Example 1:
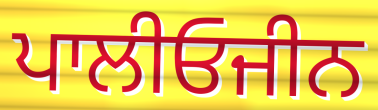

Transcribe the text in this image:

ਪਾਲੀਓਜੀਨ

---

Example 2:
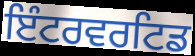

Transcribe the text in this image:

ਇੰਟਰਵਰਟਿਡ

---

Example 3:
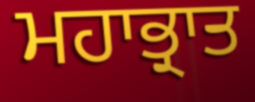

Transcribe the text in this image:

ਮਹਾਭ੍ਰਾਤ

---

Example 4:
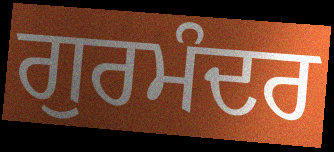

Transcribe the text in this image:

ਗੁਰਮੰਦਰ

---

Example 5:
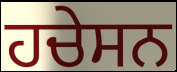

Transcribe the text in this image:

ਹਚੇਸਨ